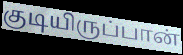
குடியிருப்பான்